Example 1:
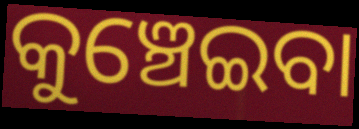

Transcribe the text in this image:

କୁଞ୍ଚେଇବା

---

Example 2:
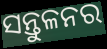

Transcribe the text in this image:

ସନ୍ତୁଳନର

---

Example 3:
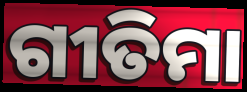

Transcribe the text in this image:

ଗୀତିମା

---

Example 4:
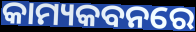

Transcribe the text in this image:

କାମ୍ୟକବନରେ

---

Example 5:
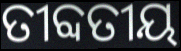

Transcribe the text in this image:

ତୀବ୍ଦତୀୟ